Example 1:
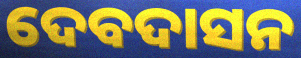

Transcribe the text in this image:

ଦେବଦାସନ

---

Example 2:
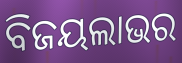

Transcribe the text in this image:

ବିଜୟଲାଭର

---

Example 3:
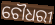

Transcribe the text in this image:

ଚୌଧରୀ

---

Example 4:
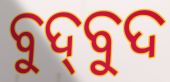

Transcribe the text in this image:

ବୁଦ୍‍ବୁଦ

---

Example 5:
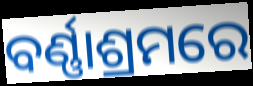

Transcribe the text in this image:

ବର୍ଣ୍ଣାଶ୍ରମରେ